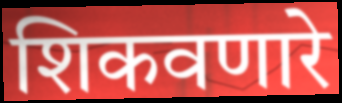
शिकवणारे